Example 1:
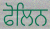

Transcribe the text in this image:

ਫੋਲਿਨ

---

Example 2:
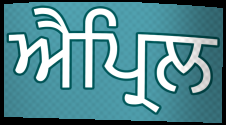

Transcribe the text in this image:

ਐਪ੍ਰਿਲ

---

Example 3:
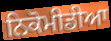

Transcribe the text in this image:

ਨਿਕੋਮੀਡੀਆ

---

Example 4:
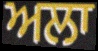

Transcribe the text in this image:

ਅਲਾ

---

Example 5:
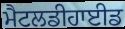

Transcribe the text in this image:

ਮੈਟਲਡੀਹਾਈਡ